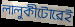
লালুকীটোৱেই